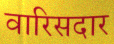
वारिसदार